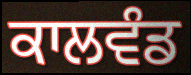
ਕਾਲਵੰਡ